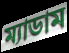
ম্যাডাম